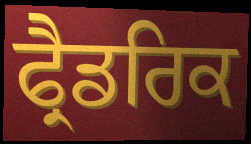
ਫ੍ਰੈਡਰਿਕ